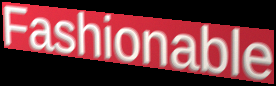
Fashionable